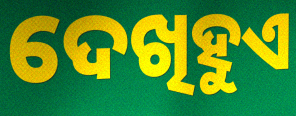
ଦେଖିହୁଏ